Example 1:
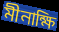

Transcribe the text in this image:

মীনাক্ষি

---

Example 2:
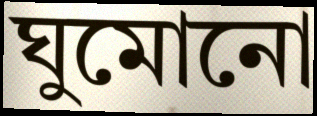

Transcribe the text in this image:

ঘুমোনো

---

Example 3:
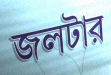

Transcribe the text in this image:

জলটার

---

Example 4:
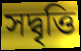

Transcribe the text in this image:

সদ্বৃত্তি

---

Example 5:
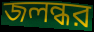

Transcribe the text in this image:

জলন্ধর